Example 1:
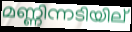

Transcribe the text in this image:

മണ്ണിന്നടിയില്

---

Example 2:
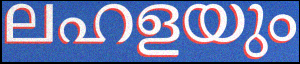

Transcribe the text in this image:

ലഹളയും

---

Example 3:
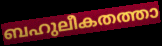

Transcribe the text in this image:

ബഹുലീകതത്താ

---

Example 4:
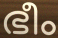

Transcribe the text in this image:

ഭീം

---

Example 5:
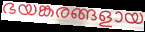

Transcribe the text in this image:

ഭയങ്കരങ്ങളായ